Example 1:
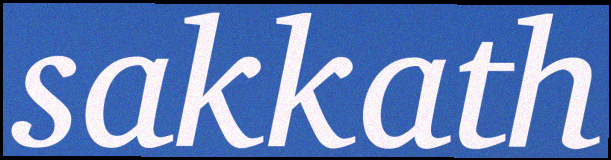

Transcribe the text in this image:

sakkath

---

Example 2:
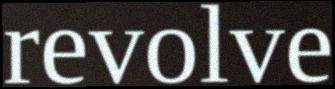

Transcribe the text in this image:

revolve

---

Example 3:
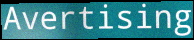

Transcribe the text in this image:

Avertising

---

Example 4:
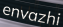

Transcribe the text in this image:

envazhi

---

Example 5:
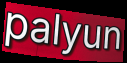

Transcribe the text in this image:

palyun